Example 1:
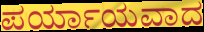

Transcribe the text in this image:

ಪರ್ಯಾಯವಾದ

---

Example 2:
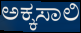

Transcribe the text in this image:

ಅಕ್ಕಸಾಲಿ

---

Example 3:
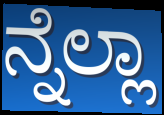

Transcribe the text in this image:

ನ್ನೆಲ್ಲಾ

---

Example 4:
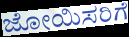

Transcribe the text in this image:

ಜೋಯಿಸರಿಗೆ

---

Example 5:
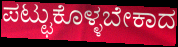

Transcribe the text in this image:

ಪಟ್ಟುಕೊಳ್ಳಬೇಕಾದ